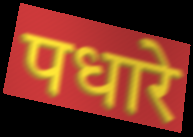
पधारे